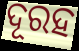
ଦୂରହ